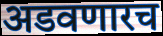
अडवणारच